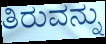
ತಿರುವನ್ನು